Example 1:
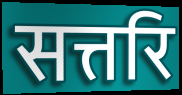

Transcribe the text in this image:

सत्तरि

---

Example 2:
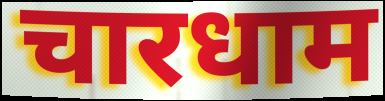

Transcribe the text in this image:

चारधाम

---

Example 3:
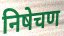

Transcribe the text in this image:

निषेचण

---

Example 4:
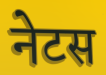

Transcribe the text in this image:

नेटस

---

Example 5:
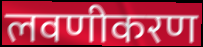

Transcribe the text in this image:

लवणीकरण